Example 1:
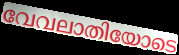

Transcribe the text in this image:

വേവലാതിയോടെ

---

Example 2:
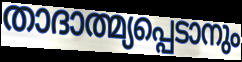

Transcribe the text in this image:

താദാത്മ്യപ്പെടാനും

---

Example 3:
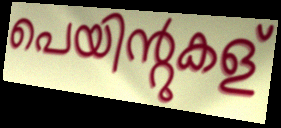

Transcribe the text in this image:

പെയിന്റുകള്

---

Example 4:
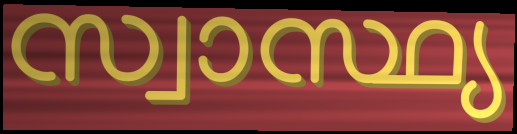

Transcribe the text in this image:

സ്വാസ്ഥ്യ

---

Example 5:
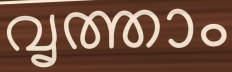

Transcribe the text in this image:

വൃത്താം